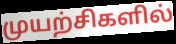
முயற்சிகளில்